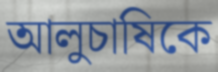
আলুচাষিকে